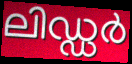
ലിഡ്ഡർ